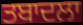
ਤਬਾਦਲਾ